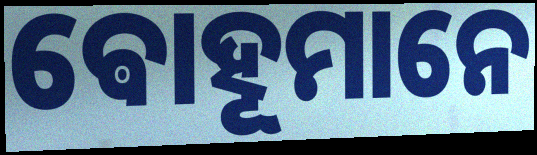
ଵୋହୂମାନେ